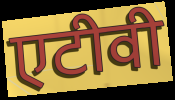
एटीवी